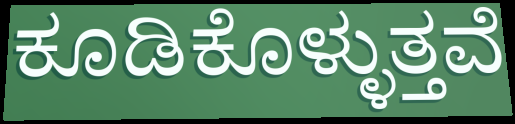
ಕೂಡಿಕೊಳ್ಳುತ್ತವೆ